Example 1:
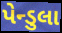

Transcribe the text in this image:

પેન્ડુલા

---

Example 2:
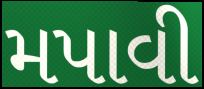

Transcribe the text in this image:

મપાવી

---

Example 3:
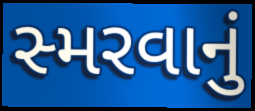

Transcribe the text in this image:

સ્મરવાનું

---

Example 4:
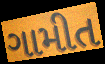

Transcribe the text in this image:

ગામીત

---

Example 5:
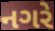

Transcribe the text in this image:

નગરે